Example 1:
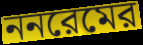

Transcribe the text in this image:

ননরেমের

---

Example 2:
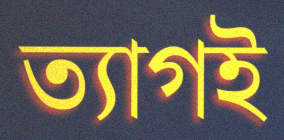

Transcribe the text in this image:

ত্যাগই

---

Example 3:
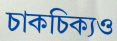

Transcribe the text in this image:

চাকচিক্যও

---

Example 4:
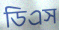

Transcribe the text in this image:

ডিএস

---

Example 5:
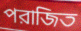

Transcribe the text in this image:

পরাজিত